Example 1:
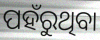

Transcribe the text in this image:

ପହଁରୁଥିବା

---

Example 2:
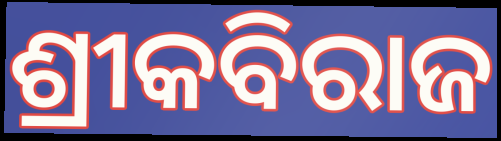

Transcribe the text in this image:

ଶ୍ରୀକବିରାଜ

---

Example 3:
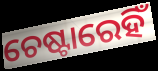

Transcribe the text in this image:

ଚେଷ୍ଟାରେହିଁ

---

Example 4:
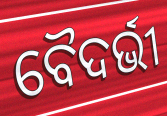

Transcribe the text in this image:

ବୈଦର୍ଭୀ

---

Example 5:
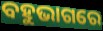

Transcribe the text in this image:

ବହୁଭାଗରେ